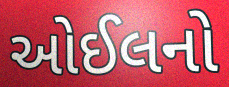
ઓઈલનો